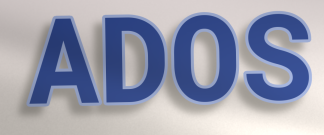
ADOS